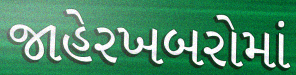
જાહેરખબરોમાં